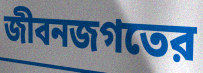
জীবনজগতের